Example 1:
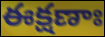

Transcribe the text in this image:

ఈక్షణాః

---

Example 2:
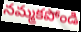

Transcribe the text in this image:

నమ్మకపోండి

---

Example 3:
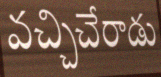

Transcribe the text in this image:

వచ్చిచేరాడు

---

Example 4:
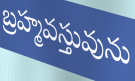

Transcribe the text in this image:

బ్రహ్మవస్తువును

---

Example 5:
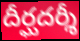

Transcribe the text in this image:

దీర్ఘదర్శీ